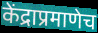
केंद्राप्रमाणेच